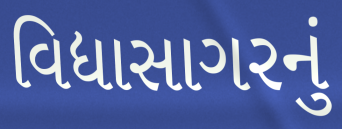
વિદ્યાસાગરનું